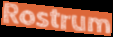
Rostrum